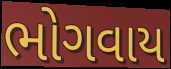
ભોગવાય